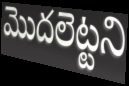
మొదలెట్టని